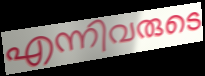
എന്നിവരുടെ